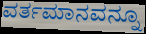
ವರ್ತಮಾನವನ್ನೂ